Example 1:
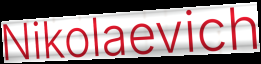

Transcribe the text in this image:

Nikolaevich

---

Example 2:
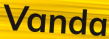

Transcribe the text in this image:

Vanda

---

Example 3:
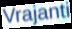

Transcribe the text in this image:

Vrajanti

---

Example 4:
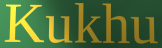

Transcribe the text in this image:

Kukhu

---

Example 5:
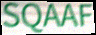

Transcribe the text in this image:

SQAAF